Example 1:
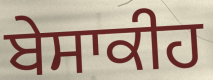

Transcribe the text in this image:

ਬੇਸਾਕੀਹ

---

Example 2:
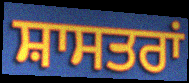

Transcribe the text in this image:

ਸ਼ਾਸਤਰਾਂ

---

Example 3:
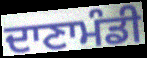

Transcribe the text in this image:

ਦਾਣਾਮੰਡੀ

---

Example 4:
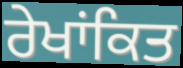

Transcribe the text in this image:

ਰੇਖਾਂਕਿਤ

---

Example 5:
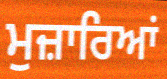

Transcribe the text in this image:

ਮੁਜ਼ਾਰਿਆਂ